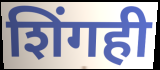
शिंगही